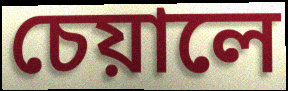
চেয়ালে